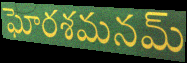
ఘోరశమనమ్